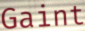
Gaint